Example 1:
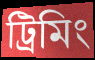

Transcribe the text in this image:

ট্রিমিং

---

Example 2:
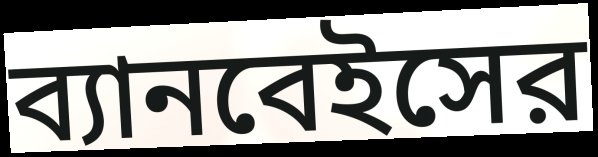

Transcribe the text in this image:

ব্যানবেইসের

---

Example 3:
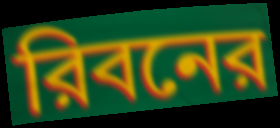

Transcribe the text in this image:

রিবনের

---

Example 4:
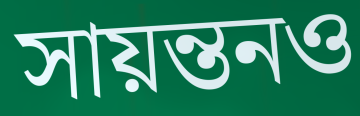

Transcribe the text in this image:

সায়ন্তনও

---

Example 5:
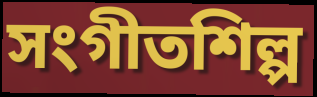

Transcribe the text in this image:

সংগীতশিল্প